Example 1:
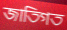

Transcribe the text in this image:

জাতিগত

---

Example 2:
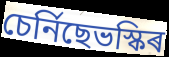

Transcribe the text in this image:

চেৰ্নিছেভস্কিৰ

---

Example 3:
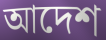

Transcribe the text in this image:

আদেশ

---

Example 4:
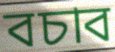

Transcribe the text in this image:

বচাব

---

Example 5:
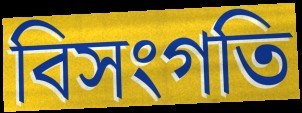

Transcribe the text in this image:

বিসংগতি